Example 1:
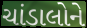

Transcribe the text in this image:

ચાંડાલોને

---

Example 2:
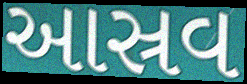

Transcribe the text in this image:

આસ્રવ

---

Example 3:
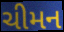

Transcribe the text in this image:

ચીમન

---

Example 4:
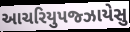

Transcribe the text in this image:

આચરિયુપજ્ઝાયેસુ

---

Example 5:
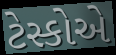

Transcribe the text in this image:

ટેસ્કોએ